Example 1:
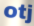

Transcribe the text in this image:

otj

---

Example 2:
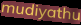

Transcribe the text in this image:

mudiyathu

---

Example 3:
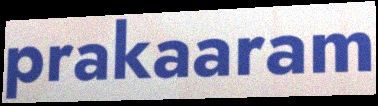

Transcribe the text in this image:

prakaaram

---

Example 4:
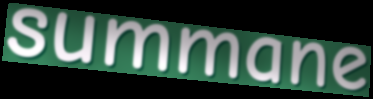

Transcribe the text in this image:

summane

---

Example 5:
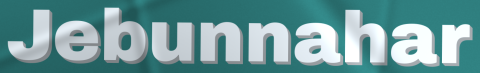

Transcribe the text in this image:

Jebunnahar